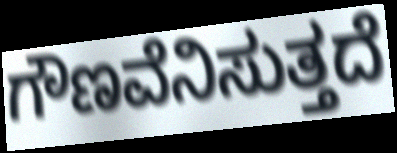
ಗೌಣವೆನಿಸುತ್ತದೆ